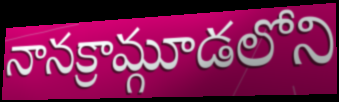
నానక్రామ్గూడలోని